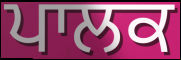
ਪਾਲਕ